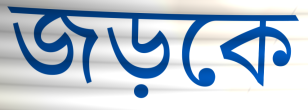
জড়কে